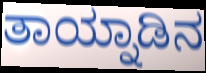
ತಾಯ್ನಾಡಿನ